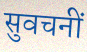
सुवचनीं